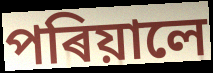
পৰিয়ালে